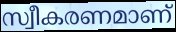
സ്വീകരണമാണ്